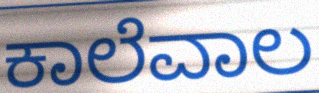
ಕಾಲೆವಾಲ